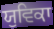
ਯੁਵਿਕਾ